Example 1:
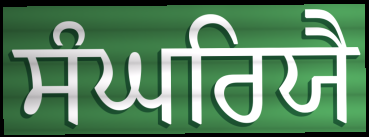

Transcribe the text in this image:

ਸੰਘਰਿਯੈ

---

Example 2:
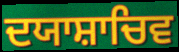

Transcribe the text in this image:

ਦਯਾਸ਼ਾਚਿਵ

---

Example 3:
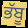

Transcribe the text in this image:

ਭੱਬੂ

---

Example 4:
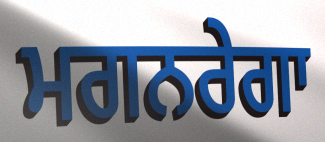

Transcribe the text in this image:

ਮਗਨਰੇਗਾ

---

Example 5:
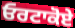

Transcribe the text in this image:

ਓਰਟਾਕੋਏ